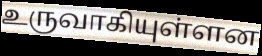
உருவாகியுள்ளன